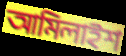
আমিলাইশ